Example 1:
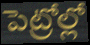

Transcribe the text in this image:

పెట్రోల్లో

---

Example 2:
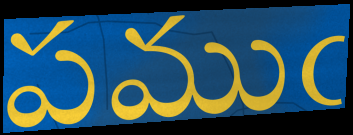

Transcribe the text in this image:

పముఁ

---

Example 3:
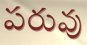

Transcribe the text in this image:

పరువు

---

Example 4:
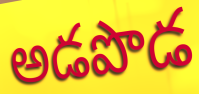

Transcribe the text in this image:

అడపొడ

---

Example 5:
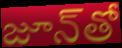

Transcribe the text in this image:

జూన్‌తో